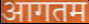
आगतम